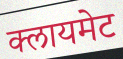
क्लायमेट